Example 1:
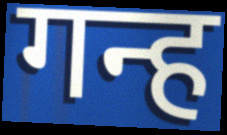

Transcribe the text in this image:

गन्ह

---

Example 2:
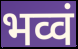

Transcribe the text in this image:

भव्वं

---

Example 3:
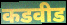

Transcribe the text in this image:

कडवीड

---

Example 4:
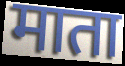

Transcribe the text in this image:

माता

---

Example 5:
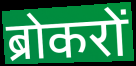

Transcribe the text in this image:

ब्रोकरों